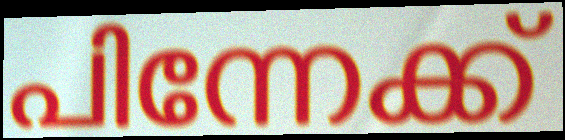
പിന്നേക്ക്